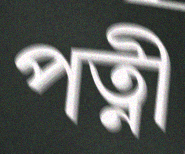
পত্নী